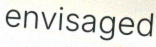
envisaged